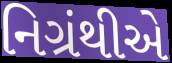
નિગ્રંથીએ